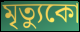
মৃত্যুকো